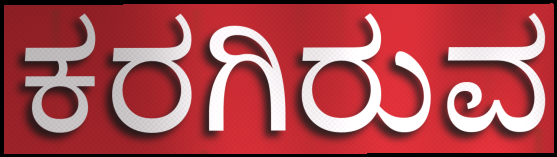
ಕರಗಿರುವ